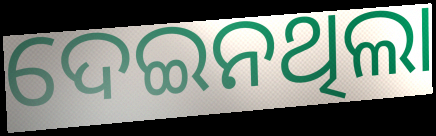
ଦେଇନଥିଲା